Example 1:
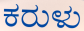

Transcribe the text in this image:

ಕರುಳು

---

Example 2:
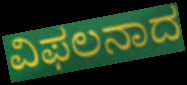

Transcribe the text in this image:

ವಿಫಲನಾದ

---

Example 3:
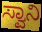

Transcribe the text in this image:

ಸ್ವಾನಿ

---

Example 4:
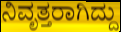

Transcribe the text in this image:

ನಿವೃತ್ತರಾಗಿದ್ದು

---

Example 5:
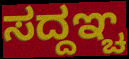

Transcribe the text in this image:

ಸದ್ದಞ್ಚ